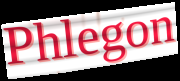
Phlegon